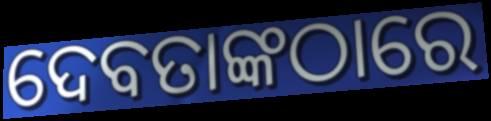
ଦେବତାଙ୍କଠାରେ